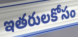
ఇతరులకోసం